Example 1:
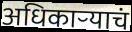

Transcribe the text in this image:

अधिकाऱ्याचं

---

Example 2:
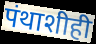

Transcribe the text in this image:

पंथाशीही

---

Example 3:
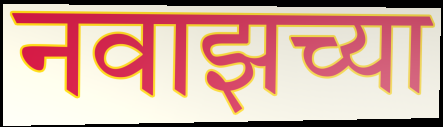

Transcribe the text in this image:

नवाझच्या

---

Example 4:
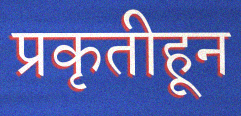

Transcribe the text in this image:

प्रकृतीहून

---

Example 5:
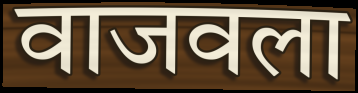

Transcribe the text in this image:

वाजवला